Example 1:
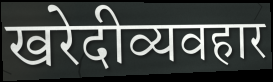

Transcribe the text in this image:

खरेदीव्यवहार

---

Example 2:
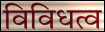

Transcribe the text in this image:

विविधत्व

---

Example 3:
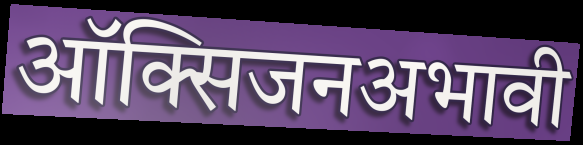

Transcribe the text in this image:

ऑक्सिजनअभावी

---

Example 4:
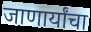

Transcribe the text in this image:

जाणार्यांचा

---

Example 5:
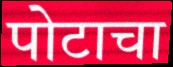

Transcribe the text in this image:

पोटाचा